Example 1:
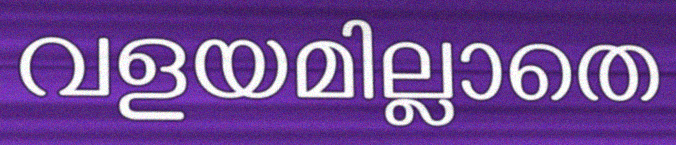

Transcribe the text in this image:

വളയമില്ലാതെ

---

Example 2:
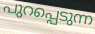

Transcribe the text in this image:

പുറപ്പെടുന്ന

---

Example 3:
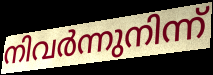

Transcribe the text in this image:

നിവർന്നുനിന്ന്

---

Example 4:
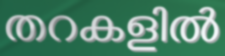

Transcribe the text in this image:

തറകളിൽ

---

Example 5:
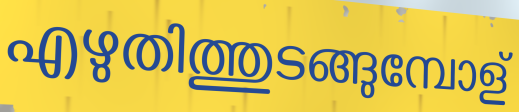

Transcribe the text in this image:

എഴുതിത്തുടങ്ങുമ്പോള്